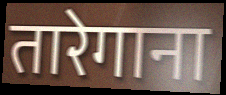
तारेगाना